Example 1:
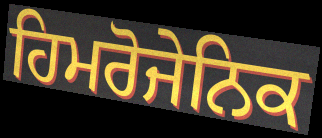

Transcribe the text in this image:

ਹਿਮਰੋਜੇਨਿਕ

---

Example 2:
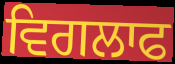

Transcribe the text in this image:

ਵਿਗਲਾਫ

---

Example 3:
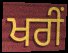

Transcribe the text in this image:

ਖਰੀਂ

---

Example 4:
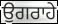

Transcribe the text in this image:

ਉਗਰਾਹੇ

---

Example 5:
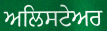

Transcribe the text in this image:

ਅਲਿਸਟੇਅਰ